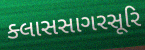
ક્લાસસાગરસૂરિ